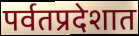
पर्वतप्रदेशात